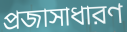
প্রজাসাধারণ